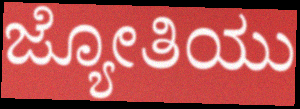
ಜ್ಯೋತಿಯು